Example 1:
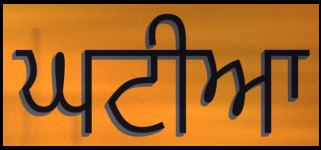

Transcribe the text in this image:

ਘਟੀਆ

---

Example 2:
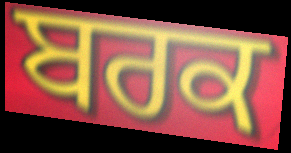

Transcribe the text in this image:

ਬਰਕ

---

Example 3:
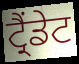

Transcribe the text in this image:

ਟ੍ਰੈਂਡੇਟ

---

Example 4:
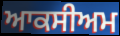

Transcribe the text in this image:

ਆਕਸੀਅਮ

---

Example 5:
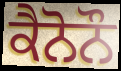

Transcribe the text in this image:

ਕੈਨੋਨੌ